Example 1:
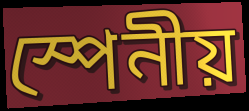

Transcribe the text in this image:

স্পেনীয়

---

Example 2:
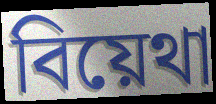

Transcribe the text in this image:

বিয়েথা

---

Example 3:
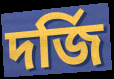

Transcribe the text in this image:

দর্জি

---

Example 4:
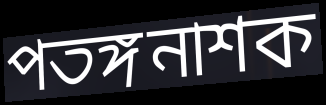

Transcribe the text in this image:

পতঙ্গনাশক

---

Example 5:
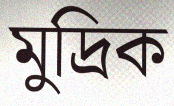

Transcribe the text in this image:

মুদ্রিক